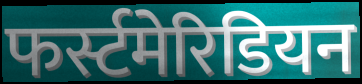
फर्स्टमेरिडियन